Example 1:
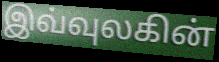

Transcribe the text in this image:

இவ்வுலகின்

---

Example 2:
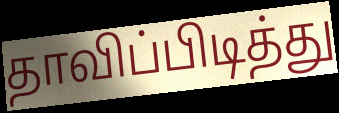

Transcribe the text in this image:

தாவிப்பிடித்து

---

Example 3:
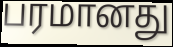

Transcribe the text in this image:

பரமானது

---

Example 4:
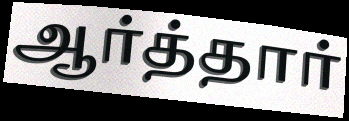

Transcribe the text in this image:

ஆர்த்தார்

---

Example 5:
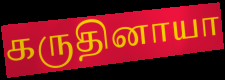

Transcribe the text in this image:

கருதினாயா